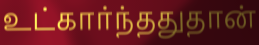
உட்கார்ந்ததுதான்